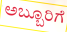
ಅಬ್ಬೂರಿಗೆ